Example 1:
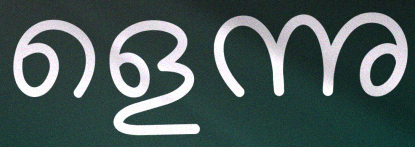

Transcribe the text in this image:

ളെന്നു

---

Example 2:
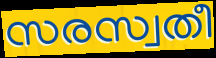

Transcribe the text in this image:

സരസ്വതീ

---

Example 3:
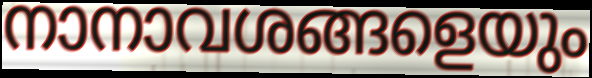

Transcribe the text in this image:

നാനാവശങ്ങളെയും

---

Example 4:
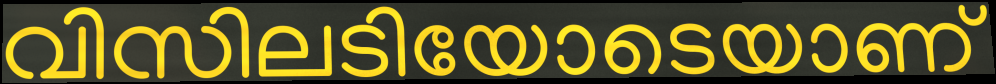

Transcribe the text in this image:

വിസിലടിയോടെയാണ്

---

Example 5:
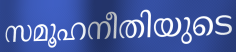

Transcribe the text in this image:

സമൂഹനീതിയുടെ